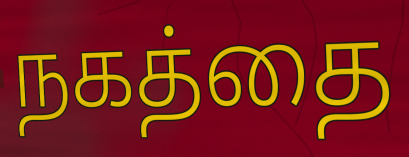
நகத்தை